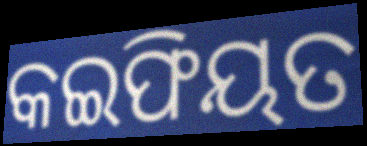
କଇଫିୟତ